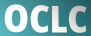
OCLC